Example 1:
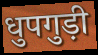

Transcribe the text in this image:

धुपगुड़ी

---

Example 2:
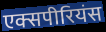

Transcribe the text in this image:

एक्सपीरियंस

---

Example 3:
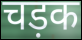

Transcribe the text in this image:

चड़क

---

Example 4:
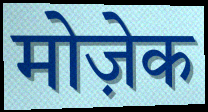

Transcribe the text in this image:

मोज़ेक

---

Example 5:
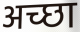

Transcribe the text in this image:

अच्छा